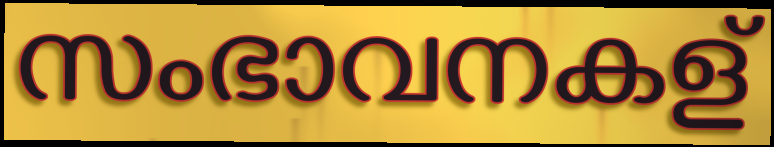
സംഭാവനകള്